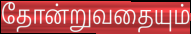
தோன்றுவதையும்